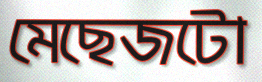
মেছেজটো